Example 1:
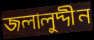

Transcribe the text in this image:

জলালুদ্দীন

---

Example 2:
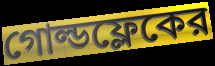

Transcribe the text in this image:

গোল্ডফ্লেকের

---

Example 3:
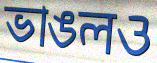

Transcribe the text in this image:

ভাঙলও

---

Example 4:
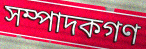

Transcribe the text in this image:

সম্পাদকগণ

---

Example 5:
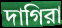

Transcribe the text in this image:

দাগিরা